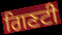
ਗਿਣਟੀ